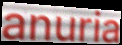
anuria